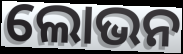
ଲୋଭନ